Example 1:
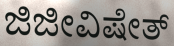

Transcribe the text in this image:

ಜಿಜೀವಿಷೇತ್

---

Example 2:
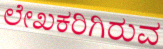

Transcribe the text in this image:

ಲೇಖಕರಿಗಿರುವ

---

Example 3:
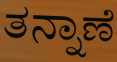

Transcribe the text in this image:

ತನ್ನಾಣೆ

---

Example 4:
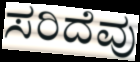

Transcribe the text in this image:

ಸರಿದೆವು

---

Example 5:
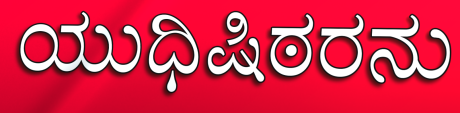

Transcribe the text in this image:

ಯುಧಿಷಿಠರನು